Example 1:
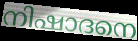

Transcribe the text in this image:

നിഷാദനെ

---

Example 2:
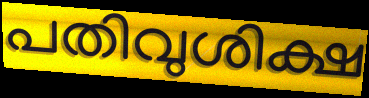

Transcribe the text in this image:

പതിവുശിക്ഷ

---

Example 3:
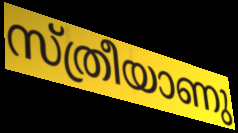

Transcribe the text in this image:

സ്ത്രീയാണു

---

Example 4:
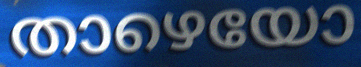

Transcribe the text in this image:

താഴെയോ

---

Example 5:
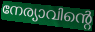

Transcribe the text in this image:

നേര്യാവിന്റെ